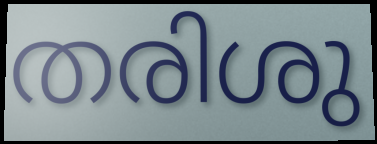
തരിശു